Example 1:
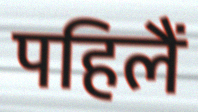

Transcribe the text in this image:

पहिलैं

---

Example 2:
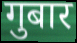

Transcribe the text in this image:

गुबार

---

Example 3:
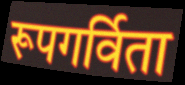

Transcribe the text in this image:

रूपगर्विता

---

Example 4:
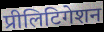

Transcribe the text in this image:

प्रीलिटिगेशन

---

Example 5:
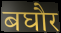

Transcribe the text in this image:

बघौर